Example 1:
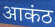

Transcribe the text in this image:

आकंठ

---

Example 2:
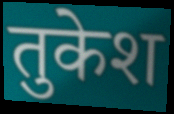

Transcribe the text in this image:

तुकेश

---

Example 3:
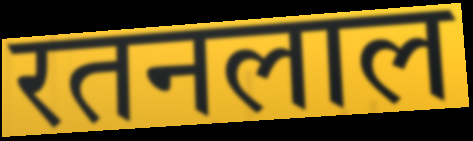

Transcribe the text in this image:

रतनलाल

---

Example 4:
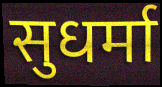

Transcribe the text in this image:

सुधर्मा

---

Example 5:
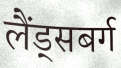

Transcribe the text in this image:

लैंड्सबर्ग